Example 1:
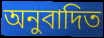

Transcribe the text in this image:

অনুবাদিত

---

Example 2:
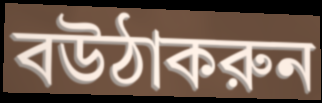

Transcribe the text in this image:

বউঠাকরুন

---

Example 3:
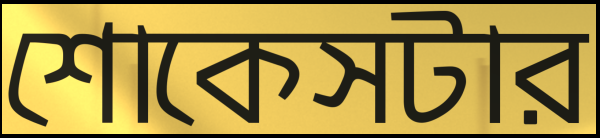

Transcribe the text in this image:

শোকেসটার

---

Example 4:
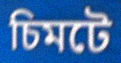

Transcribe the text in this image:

চিমটে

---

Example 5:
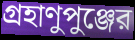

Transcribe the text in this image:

গ্রহাণুপুঞ্জের